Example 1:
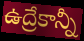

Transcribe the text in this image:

ఉద్రేకాన్నీ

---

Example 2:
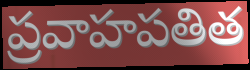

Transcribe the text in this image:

ప్రవాహపతిత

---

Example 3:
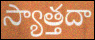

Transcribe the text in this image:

స్యాత్తదా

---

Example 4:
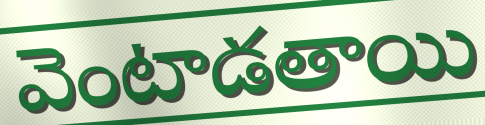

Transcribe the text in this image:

వెంటాడతాయి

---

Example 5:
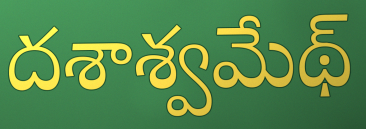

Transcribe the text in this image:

దశాశ్వమేథ్